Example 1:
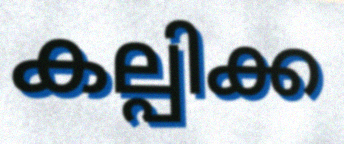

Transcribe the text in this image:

കല്പിക്ക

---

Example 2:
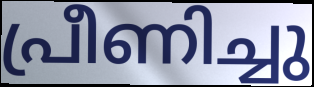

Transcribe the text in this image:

പ്രീണിച്ചു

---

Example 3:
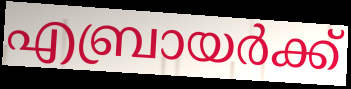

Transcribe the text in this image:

എബ്രായർക്ക്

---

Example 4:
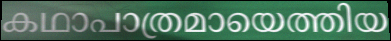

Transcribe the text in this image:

കഥാപാത്രമായെത്തിയ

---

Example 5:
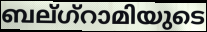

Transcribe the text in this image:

ബല്ഗ്റാമിയുടെ